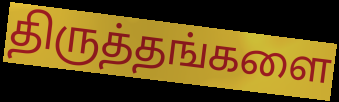
திருத்தங்களை